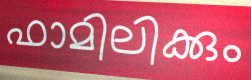
ഫാമിലിക്കും